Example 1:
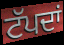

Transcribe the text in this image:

ਟੱਪਦਾਂ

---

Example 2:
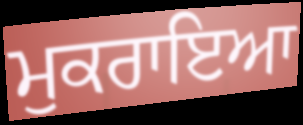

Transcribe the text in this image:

ਮੁਕਰਾਇਆ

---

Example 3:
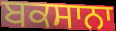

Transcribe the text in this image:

ਬਕਸਾਨਾ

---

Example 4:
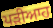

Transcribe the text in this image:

ਪੜੀਆਹ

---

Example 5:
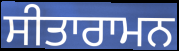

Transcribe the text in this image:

ਸੀਤਾਰਾਮਨ